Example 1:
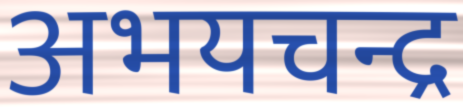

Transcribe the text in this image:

अभयचन्द्र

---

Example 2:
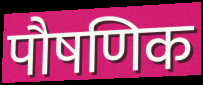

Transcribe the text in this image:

पौषणिक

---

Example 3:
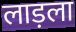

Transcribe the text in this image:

लाड़ला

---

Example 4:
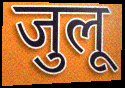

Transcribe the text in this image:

जुलू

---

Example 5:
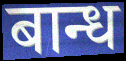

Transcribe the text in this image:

बान्ध